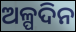
ଅଳ୍ପଦିନ